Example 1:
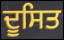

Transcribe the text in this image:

ਦੂਸਿਤ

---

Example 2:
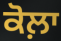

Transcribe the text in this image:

ਕੋਲ਼ਾ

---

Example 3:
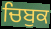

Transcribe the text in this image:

ਚਿਬੁਕ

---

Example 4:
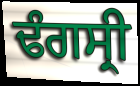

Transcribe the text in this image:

ਢੰਗਸ੍ਰੀ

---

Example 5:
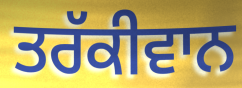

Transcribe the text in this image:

ਤਰੱਕੀਵਾਨ